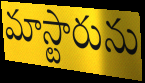
మాస్టారును